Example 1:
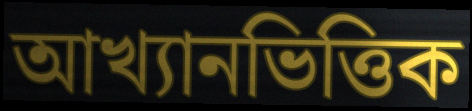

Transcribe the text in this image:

আখ্যানভিত্তিক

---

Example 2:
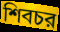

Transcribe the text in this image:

শিবচর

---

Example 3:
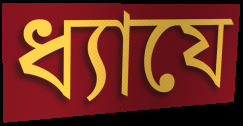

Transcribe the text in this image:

ধ্যাযে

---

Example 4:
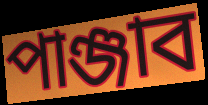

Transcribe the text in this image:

পাঞ্জাব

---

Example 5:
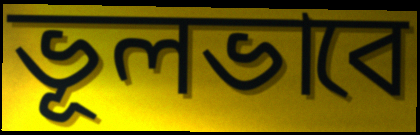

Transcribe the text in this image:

ভূলভাবে